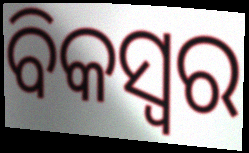
ବିକସ୍ୱର